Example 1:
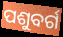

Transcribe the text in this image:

ପଶୁବର୍ଗ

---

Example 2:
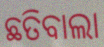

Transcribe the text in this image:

ଛତିବାଲା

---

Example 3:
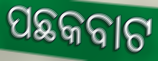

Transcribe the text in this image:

ପଛକବାଟ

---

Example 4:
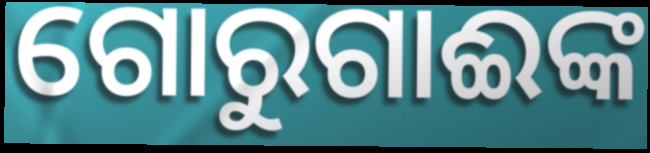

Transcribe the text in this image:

ଗୋରୁଗାଈଙ୍କ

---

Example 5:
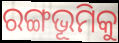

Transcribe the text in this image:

ରଙ୍ଗଭୂମିକୁ